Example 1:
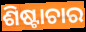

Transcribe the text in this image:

ଶିଷ୍ଟାଚାର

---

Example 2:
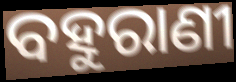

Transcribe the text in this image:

ବହୁରାଣୀ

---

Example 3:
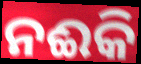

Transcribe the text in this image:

ନଈକି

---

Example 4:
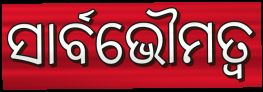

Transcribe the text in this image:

ସାର୍ବଭୌମତ୍ଵ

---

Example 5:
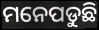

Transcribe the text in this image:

ମନେପଡୁଛି